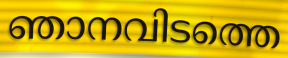
ഞാനവിടത്തെ